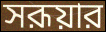
সরূয়ার